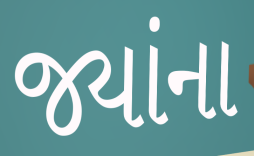
જ્યાંના